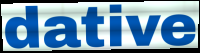
dative